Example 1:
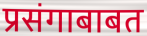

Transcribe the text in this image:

प्रसंगाबाबत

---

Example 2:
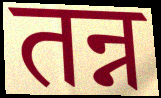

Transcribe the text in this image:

तन्न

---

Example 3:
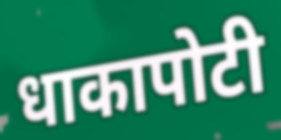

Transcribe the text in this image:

धाकापोटी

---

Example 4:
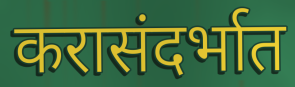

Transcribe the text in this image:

करासंदर्भात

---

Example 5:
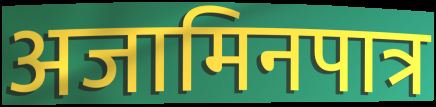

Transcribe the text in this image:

अजामिनपात्र